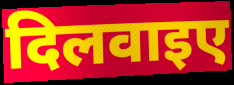
दिलवाइए